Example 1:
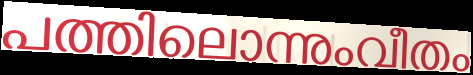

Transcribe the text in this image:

പത്തിലൊന്നുംവീതം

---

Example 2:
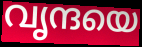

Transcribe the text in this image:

വൃന്ദയെ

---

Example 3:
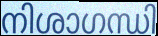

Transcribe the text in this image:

നിശാഗന്ധി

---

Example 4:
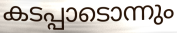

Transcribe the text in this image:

കടപ്പാടൊന്നും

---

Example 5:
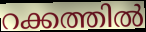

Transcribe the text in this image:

റക്കത്തിൽ